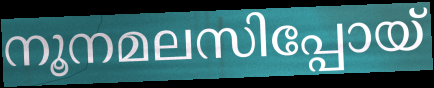
നൂനമലസിപ്പോയ്